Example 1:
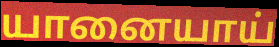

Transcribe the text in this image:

யானையாய்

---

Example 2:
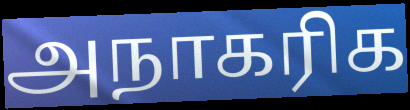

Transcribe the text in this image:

அநாகரிக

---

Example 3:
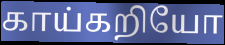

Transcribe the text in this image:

காய்கறியோ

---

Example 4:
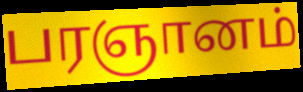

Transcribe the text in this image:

பரஞானம்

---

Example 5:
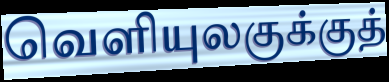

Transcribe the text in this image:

வெளியுலகுக்குத்